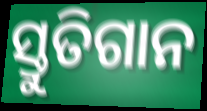
ସ୍ତୁତିଗାନ